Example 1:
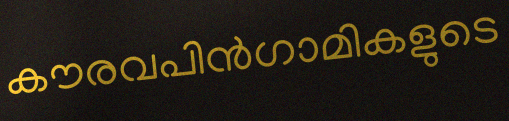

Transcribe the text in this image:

കൗരവപിൻഗാമികളുടെ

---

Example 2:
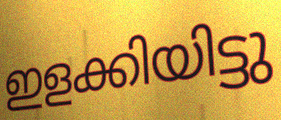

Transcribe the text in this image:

ഇളക്കിയിട്ടു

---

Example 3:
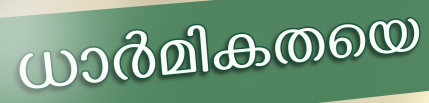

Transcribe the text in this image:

ധാർമികതയെ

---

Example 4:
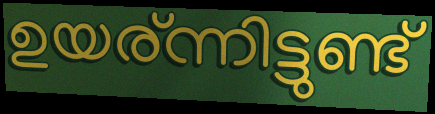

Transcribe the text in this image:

ഉയര്ന്നിട്ടുണ്ട്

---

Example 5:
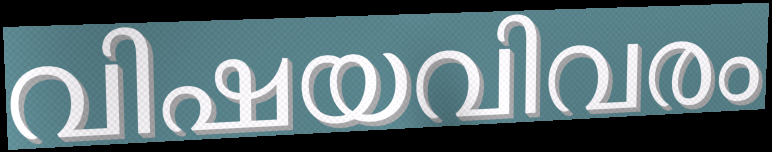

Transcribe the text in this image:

വിഷയവിവരം